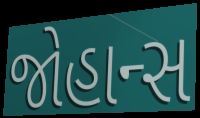
જોહાન્સ